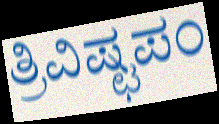
ತ್ರಿವಿಷ್ಟಪಂ